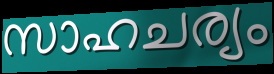
സാഹചര്യം